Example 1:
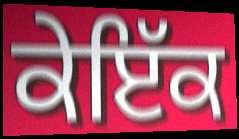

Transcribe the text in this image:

ਕੇਇੱਕ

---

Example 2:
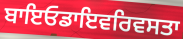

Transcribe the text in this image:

ਬਾਇਓਡਾਇਵਰਿਵਸਤਾ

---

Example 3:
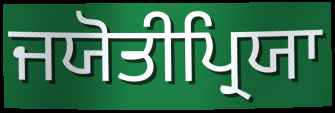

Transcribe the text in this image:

ਜਯੋਤੀਪ੍ਰਿਯਾ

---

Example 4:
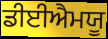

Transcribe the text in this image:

ਡੀਈਐਮਯੂ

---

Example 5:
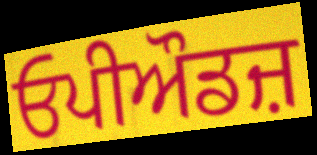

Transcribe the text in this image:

ਓਪੀਔਡਜ਼